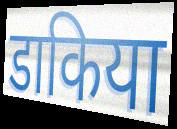
डाकिया